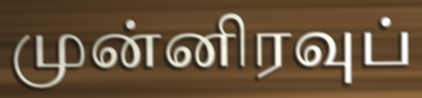
முன்னிரவுப்